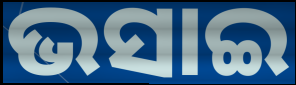
ଭସାଇ